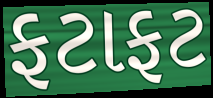
ફટાફટ